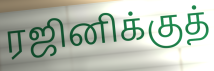
ரஜினிக்குத்